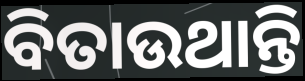
ବିତାଉଥାନ୍ତି